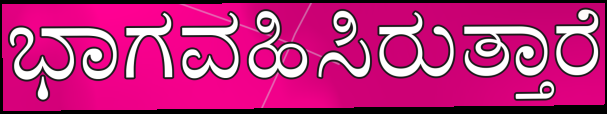
ಭಾಗವಹಿಸಿರುತ್ತಾರೆ